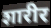
शारीर